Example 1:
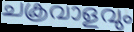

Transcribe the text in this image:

ചക്രവാളവും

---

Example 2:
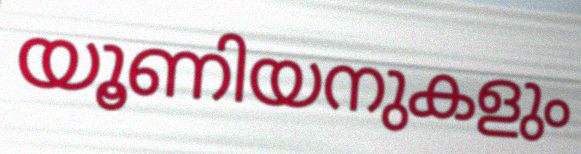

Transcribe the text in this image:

യൂണിയനുകളും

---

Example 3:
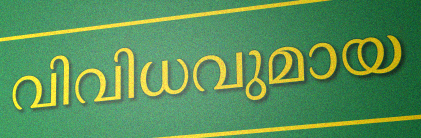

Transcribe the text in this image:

വിവിധവുമായ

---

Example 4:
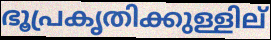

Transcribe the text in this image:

ഭൂപ്രകൃതിക്കുള്ളില്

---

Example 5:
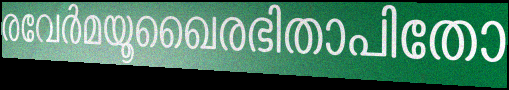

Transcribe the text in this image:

രവേർമയൂഖൈരഭിതാപിതോ